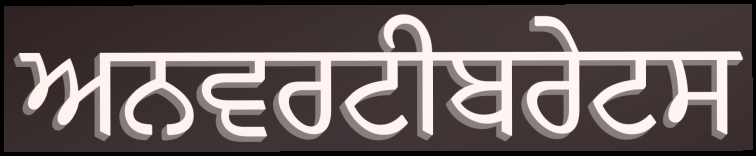
ਅਨਵਰਟੀਬਰੇਟਸ